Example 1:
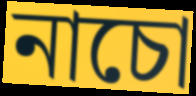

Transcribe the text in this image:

নাচো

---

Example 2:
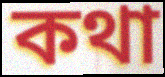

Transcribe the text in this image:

কথা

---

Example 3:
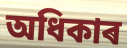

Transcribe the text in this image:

অধিকাৰ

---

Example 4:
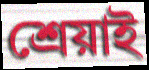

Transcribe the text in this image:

শ্ৰেয়াই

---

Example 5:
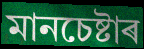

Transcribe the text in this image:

মানচেষ্টাৰ